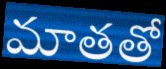
మాతతో